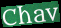
Chav